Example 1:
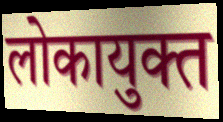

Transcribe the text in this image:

लोकायुक्त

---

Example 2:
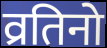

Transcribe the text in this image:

व्रतिनो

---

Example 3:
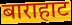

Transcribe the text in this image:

बाराहाट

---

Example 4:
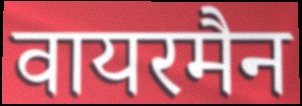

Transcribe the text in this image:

वायरमैन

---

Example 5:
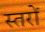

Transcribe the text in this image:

स्तरों